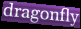
dragonfly